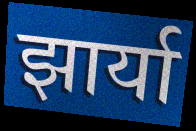
झार्या